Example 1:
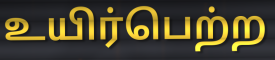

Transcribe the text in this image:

உயிர்பெற்ற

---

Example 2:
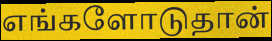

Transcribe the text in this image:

எங்களோடுதான்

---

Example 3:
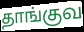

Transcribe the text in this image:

தாங்குவ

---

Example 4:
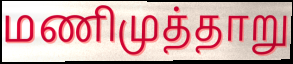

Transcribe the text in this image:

மணிமுத்தாறு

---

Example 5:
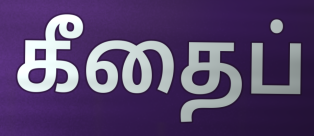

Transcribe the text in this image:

கீதைப்